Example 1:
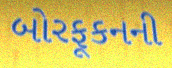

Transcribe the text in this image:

બોરફૂકનની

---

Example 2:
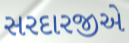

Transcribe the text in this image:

સરદારજીએ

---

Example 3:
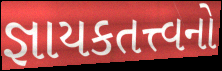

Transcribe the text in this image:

જ્ઞાયકતત્ત્વનો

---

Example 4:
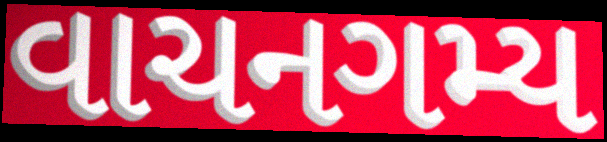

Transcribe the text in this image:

વાચનગમ્ય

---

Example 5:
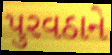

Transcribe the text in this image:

પુરવઠાને